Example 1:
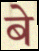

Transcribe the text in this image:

बे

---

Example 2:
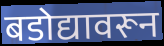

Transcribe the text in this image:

बडोद्यावरून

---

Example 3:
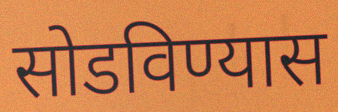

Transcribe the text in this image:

सोडविण्यास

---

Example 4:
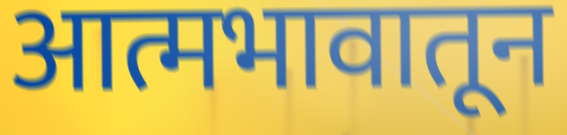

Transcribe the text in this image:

आत्मभावातून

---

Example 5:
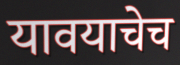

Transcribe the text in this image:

यावयाचेच